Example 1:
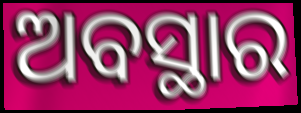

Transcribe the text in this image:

ଅବସ୍ଥାର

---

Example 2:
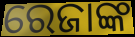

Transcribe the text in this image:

ରେଜାଙ୍କ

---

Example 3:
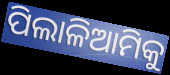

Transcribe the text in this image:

ପିଲାଳିଆମିକୁ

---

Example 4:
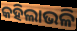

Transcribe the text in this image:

କହିଲାଭଳି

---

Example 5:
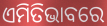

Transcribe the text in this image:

ଏମିତିଭାବରେ